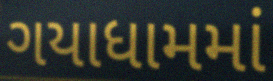
ગયાધામમાં